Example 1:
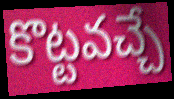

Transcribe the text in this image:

కొట్టవచ్చే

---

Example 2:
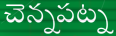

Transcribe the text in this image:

చెన్నపట్న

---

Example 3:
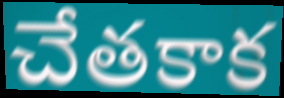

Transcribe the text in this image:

చేతకాక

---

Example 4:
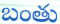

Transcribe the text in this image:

బంతు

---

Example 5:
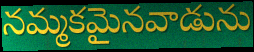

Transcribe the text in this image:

నమ్మకమైనవాడును